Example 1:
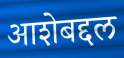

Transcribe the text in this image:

आशेबद्दल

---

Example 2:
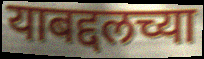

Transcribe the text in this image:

याबद्दलच्या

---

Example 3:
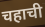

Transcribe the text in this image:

चहाची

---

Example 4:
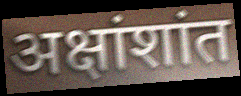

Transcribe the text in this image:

अक्षांशांत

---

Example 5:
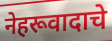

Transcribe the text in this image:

नेहरूवादाचे